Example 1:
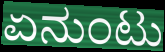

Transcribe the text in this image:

ಏನುಂಟು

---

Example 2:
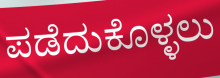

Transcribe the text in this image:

ಪಡೆದುಕೊಳ್ಳಲು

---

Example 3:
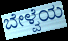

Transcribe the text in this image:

ಬೇಳ್ವೆಯ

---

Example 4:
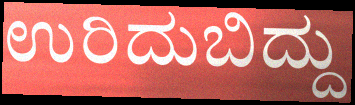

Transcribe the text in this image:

ಉರಿದುಬಿದ್ದು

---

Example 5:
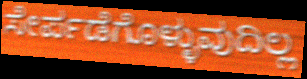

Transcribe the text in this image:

ಸೇರ್ಪಡೆಗೊಳ್ಳುವುದಿಲ್ಲ